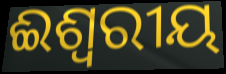
ଈଶ୍ବରୀୟ